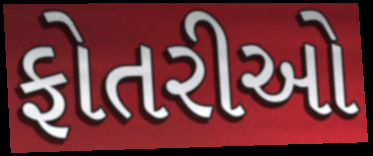
ફોતરીઓ